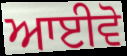
ਆਈਵੋ